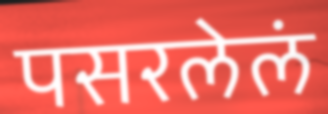
पसरलेलं